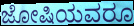
ಜೋಷಿಯವರೂ